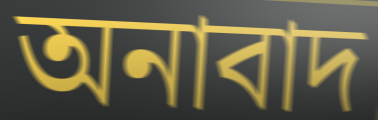
অনাবাদ